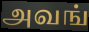
அவங்